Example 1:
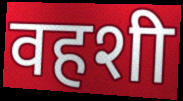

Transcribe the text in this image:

वहशी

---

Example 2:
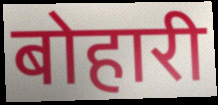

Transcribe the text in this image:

बोहारी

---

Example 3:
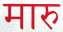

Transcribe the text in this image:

मारु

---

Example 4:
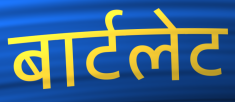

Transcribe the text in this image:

बार्टलेट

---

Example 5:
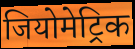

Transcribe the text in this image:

जियोमेट्रिक